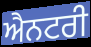
ਐਨਟਰੀ